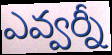
ఎవ్వర్నీ